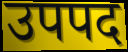
उपपद